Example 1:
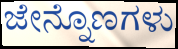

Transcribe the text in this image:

ಜೇನ್ನೊಣಗಳು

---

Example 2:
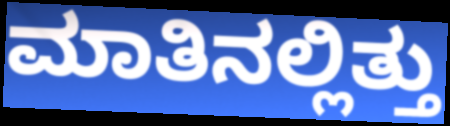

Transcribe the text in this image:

ಮಾತಿನಲ್ಲಿತ್ತು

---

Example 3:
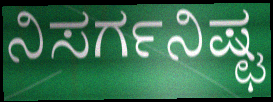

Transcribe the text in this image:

ನಿಸರ್ಗನಿಷ್ಟ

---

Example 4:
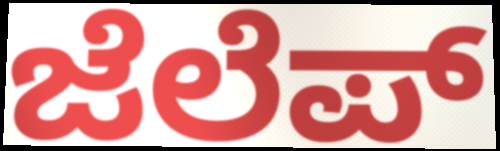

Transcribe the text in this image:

ಜೆಲೆಪ್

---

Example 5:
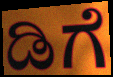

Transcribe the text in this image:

ಡಿಗೆ